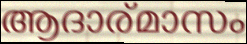
ആദാര്മാസം